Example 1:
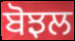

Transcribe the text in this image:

ਬੋਝਲ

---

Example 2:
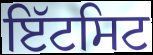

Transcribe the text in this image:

ਇੱਟਸਿਟ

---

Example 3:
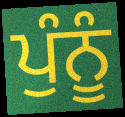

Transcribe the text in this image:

ਪੁੰਨੂੰ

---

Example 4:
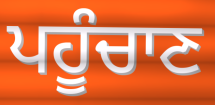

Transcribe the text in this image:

ਪਹੂੰਚਾਣ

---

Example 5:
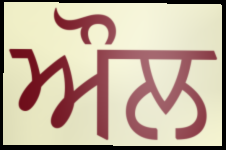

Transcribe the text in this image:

ਔਲ